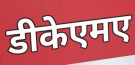
डीकेएमए